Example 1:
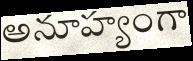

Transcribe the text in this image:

అనూహ్యంగా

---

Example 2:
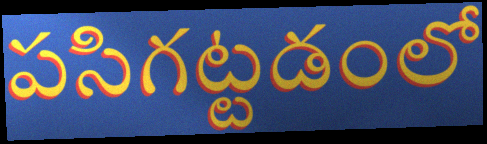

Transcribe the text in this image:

పసిగట్టడంలో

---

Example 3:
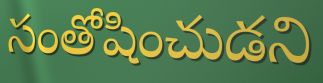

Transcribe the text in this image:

సంతోషించుడని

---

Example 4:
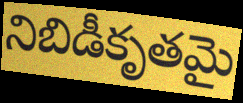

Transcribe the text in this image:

నిబిడీకృతమై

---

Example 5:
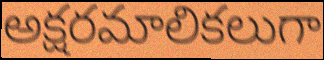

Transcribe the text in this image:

అక్షరమాలికలుగా